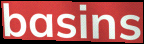
basins